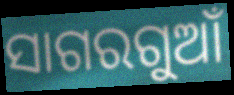
ସାଗରଗୁଆଁ